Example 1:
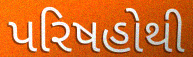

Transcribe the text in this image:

પરિષહોથી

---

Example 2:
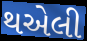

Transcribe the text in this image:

થએલી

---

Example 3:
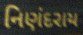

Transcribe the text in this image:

નિણંદરાય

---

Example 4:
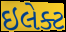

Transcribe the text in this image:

ઇલેક્ટ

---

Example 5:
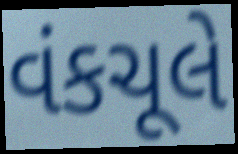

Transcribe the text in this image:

વંકચૂલે